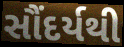
સૌંદર્યથી